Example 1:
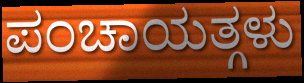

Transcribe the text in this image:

ಪಂಚಾಯತ್ಗಳು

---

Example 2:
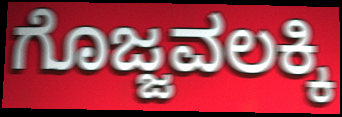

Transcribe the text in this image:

ಗೊಜ್ಜವಲಕ್ಕಿ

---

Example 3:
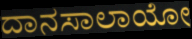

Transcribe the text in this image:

ದಾನಸಾಲಾಯೋ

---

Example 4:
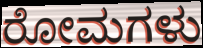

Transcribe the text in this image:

ರೋಮಗಳು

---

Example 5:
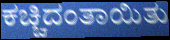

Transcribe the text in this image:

ಕಚ್ಚಿದಂತಾಯಿತು